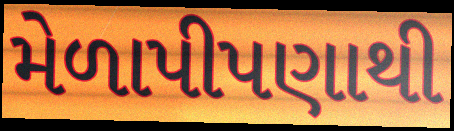
મેળાપીપણાથી